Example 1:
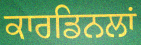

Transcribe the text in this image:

ਕਾਰਡਿਨਲਾਂ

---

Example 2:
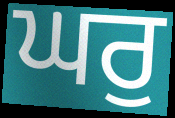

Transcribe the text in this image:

ਘਰੁ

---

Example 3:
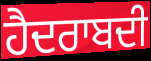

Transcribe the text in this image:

ਹੈਦਰਾਬਦੀ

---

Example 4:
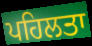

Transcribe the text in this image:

ਪਹਿਲਤਾ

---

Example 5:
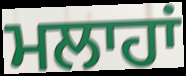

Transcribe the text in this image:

ਮਲਾਹਾਂ